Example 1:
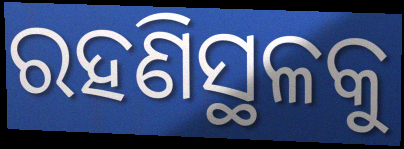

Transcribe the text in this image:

ରହଣିସ୍ଥଳକୁ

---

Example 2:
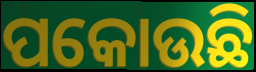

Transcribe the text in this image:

ପକୋଉଛି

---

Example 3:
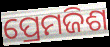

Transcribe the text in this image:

ପ୍ରେମଜିଶ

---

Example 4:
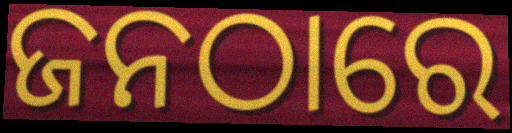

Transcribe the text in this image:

ଜନଠାରେ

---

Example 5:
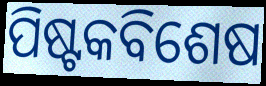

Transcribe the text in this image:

ପିଷ୍ଟକବିଶେଷ